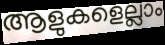
ആളുകളെല്ലാം